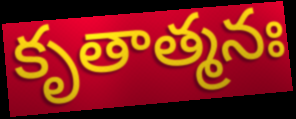
కృతాత్మనః